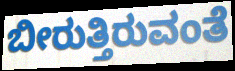
ಬೀರುತ್ತಿರುವಂತೆ